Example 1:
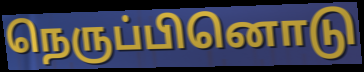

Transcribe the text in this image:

நெருப்பினொடு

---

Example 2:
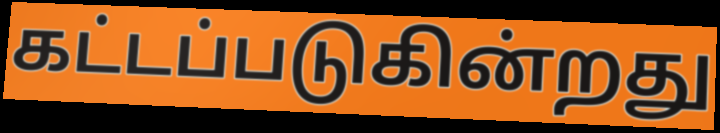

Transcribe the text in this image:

கட்டப்படுகின்றது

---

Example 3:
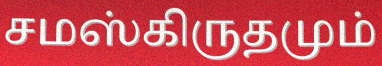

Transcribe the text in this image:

சமஸ்கிருதமும்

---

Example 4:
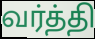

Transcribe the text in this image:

வர்த்தி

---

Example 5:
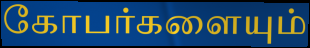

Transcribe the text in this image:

கோபர்களையும்